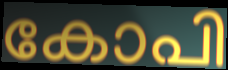
കോപി